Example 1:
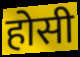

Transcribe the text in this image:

होसी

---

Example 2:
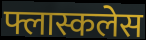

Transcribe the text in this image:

फ्लास्कलेस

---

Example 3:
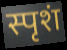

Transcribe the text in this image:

स्पृशं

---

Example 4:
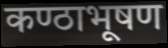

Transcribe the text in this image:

कण्ठाभूषण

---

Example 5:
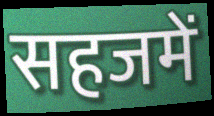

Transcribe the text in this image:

सहजमें